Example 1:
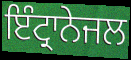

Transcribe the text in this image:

ਇੰਟ੍ਰਾਨੇਜਲ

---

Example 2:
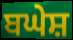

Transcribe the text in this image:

ਬਘੇਸ਼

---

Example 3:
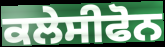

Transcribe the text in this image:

ਕਲੇਸੀਫੋਨ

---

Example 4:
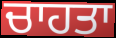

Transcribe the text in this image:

ਚਾਹਤਾ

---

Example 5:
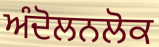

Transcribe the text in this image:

ਅੰਦੋਲਨਲੋਕ